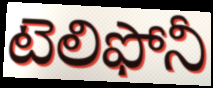
టెలిఫోనీ